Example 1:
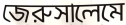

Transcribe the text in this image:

জেরুসালেমে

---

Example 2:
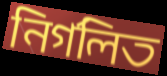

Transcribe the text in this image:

নির্গলিত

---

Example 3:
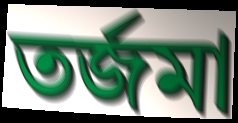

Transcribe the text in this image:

তর্জমা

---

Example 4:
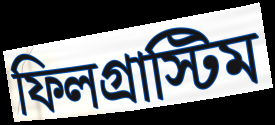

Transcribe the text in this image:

ফিলগ্রাস্টিম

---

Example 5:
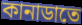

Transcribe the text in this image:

কানাডাতে